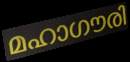
മഹാഗൗരി